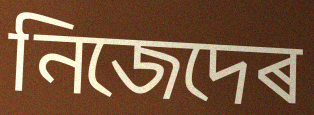
নিজেদেৰ